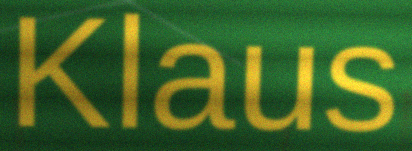
Klaus